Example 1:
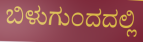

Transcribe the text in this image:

ಬಿಳುಗುಂದದಲ್ಲಿ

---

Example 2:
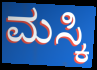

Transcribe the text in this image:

ಮಸ್ಕಿ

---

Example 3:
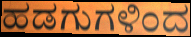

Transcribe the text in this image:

ಹಡಗುಗಳಿಂದ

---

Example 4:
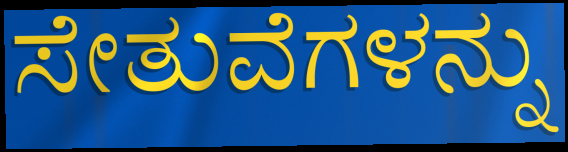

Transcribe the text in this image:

ಸೇತುವೆಗಳನ್ನು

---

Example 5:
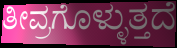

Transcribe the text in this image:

ತೀವ್ರಗೊಳ್ಳುತ್ತದೆ